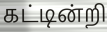
கட்டின்றி